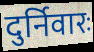
दुर्निवारः